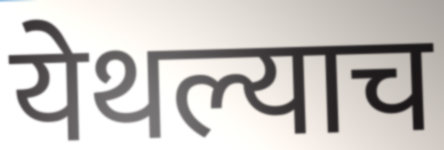
येथल्याच